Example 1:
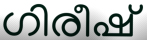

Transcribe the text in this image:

ഗിരീഷ്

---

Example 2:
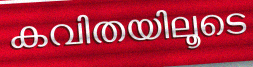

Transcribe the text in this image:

കവിതയിലൂടെ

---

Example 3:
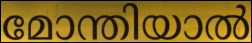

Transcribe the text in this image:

മോന്തിയാൽ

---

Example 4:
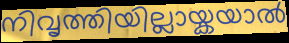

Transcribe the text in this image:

നിവൃത്തിയില്ലായ്കയാൽ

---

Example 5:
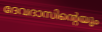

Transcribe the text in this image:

ദേവദാസിന്റെയും